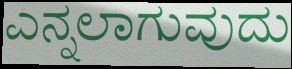
ಎನ್ನಲಾಗುವುದು